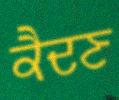
ਕੈਦਣ